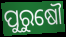
ପୁରୁଷୌ